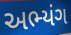
અભ્યંગ